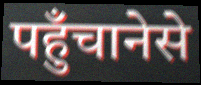
पहुँचानेसे